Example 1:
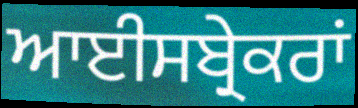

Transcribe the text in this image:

ਆਈਸਬ੍ਰੇਕਰਾਂ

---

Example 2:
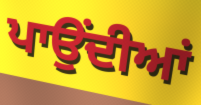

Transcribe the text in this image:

ਪਾਉਂਦੀਆਂ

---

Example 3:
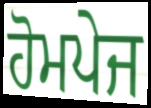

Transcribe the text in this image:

ਹੋਮਪੇਜ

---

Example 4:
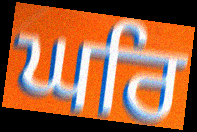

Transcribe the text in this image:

ਘਰਿ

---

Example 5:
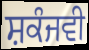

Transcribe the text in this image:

ਸ਼ਕੰਜਵੀ